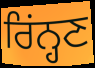
ਰਿਂਨ੍ਹਣ